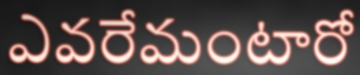
ఎవరేమంటారో